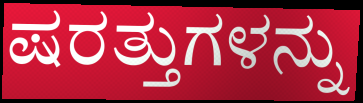
ಷರತ್ತುಗಳನ್ನು